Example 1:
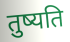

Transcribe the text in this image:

तुष्यति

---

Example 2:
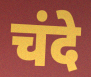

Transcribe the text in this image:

चंदे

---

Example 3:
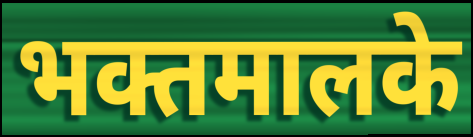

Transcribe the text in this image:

भक्तमालके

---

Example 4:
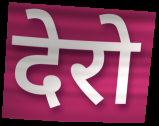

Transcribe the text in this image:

देरो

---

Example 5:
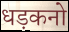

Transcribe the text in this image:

धड़कनो